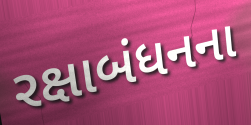
રક્ષાબંધનના